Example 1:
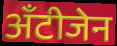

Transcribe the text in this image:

अँटीजेन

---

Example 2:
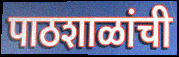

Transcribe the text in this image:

पाठशाळांची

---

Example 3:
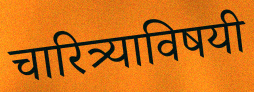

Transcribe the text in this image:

चारित्र्याविषयी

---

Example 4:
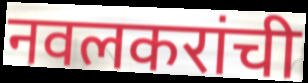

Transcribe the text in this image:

नवलकरांची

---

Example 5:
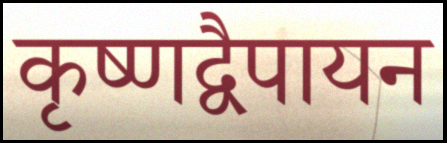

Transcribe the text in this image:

कृष्णद्वैपायन